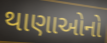
થાણાઓનો